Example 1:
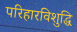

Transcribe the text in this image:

परिहारविशुद्धि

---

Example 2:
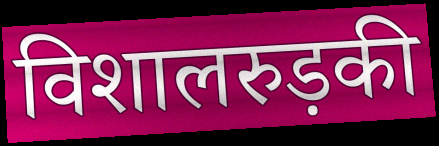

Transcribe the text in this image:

विशालरुड़की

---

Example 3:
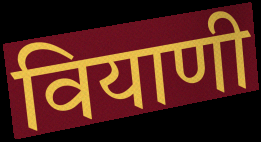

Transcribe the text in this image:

वियाणी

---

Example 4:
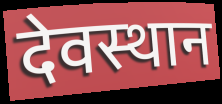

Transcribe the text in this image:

देवस्थान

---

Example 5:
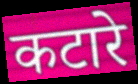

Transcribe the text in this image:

कटारे